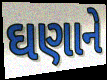
ઘણાને